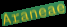
Araneae